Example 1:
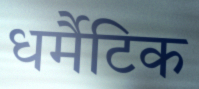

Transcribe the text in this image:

धर्मैटिक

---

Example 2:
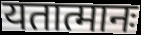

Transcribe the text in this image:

यतात्मानः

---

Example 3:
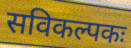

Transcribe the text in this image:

सविकल्पकः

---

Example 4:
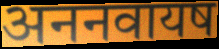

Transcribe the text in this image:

अननवायष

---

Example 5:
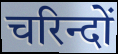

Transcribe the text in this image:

चरिन्दों